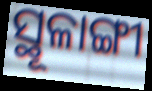
ସ୍ଥୂଳାଙ୍ଗୀ